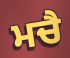
ਮਚੈ